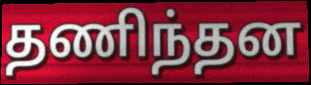
தணிந்தன